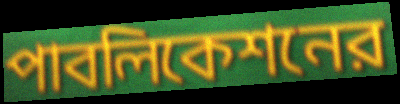
পাবলিকেশনের